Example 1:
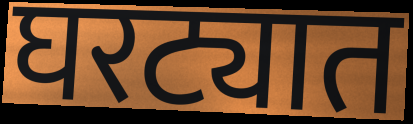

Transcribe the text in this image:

घरट्यात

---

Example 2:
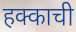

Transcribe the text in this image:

हक्काची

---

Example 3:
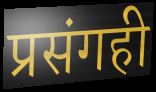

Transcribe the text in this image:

प्रसंगही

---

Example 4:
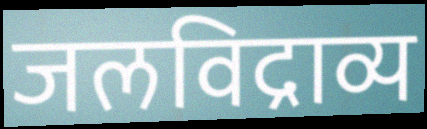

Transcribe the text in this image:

जलविद्राव्य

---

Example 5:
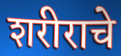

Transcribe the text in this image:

शरीराचे